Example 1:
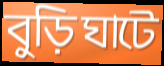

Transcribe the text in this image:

বুড়িঘাটে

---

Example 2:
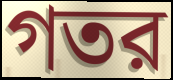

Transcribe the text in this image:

গতর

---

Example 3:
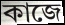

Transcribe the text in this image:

কাজে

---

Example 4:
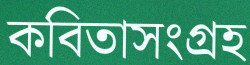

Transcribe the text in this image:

কবিতাসংগ্রহ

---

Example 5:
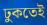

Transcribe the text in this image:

ঢুকতেই